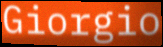
Giorgio